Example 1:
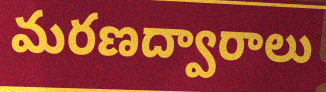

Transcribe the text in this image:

మరణద్వారాలు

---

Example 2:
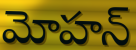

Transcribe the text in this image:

మోహన్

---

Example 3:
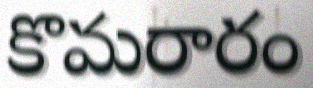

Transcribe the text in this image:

కొమరారం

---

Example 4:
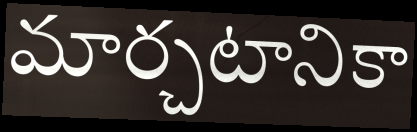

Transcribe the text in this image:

మార్చటానికా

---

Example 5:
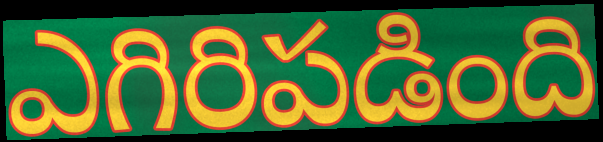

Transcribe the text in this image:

ఎగిరిపడింది